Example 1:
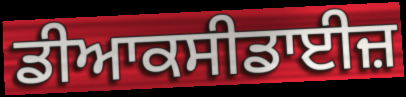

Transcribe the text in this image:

ਡੀਆਕਸੀਡਾਈਜ਼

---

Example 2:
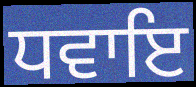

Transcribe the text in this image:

ਧਵਾਇ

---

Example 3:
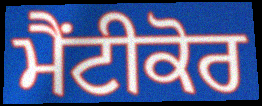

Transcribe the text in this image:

ਮੈਂਟੀਕੋਰ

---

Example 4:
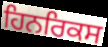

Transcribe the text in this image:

ਹਿਨਰਿਕਸ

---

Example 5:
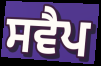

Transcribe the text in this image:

ਸਵੈਪ